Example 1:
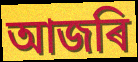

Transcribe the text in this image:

আজৰি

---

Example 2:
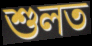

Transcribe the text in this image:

শুলত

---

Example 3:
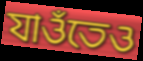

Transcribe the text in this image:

যাওঁতেও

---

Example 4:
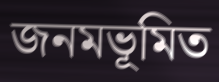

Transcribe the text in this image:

জনমভূমিত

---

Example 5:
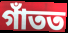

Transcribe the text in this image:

গাঁতত